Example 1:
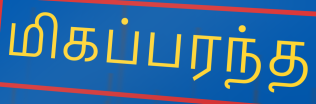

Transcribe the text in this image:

மிகப்பரந்த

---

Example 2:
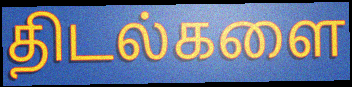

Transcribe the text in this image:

திடல்களை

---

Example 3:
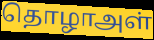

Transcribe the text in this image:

தொழாஅள்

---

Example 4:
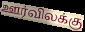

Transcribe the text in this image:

ஊர்விலக்கு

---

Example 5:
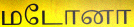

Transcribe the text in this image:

மடோனா